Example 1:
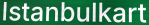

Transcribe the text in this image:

Istanbulkart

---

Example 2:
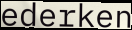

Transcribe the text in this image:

ederken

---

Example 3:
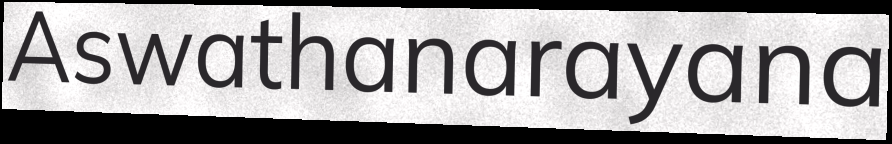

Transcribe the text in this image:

Aswathanarayana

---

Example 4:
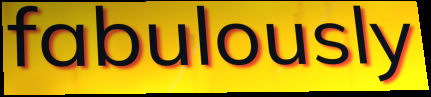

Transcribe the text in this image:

fabulously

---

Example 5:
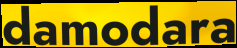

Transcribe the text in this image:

damodara